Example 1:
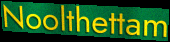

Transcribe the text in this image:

Noolthettam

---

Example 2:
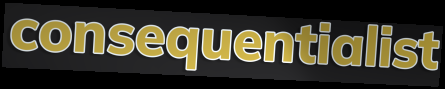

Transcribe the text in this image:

consequentialist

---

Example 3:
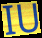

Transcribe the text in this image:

IU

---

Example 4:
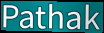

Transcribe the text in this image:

Pathak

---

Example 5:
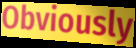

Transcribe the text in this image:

Obviously